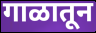
गाळातून